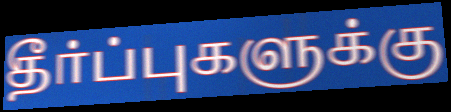
தீர்ப்புகளுக்கு